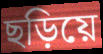
ছড়িয়ে